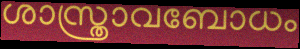
ശാസ്ത്രാവബോധം